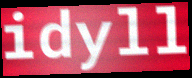
idyll